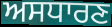
ਅਸਧਾਰਣ